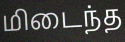
மிடைந்த